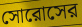
সোরোসের